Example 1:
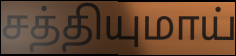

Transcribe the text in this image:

சத்தியுமாய்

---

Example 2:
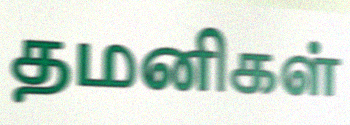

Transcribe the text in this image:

தமனிகள்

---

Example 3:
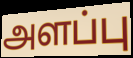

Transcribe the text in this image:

அளப்பு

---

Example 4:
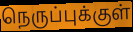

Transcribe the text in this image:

நெருப்புக்குள்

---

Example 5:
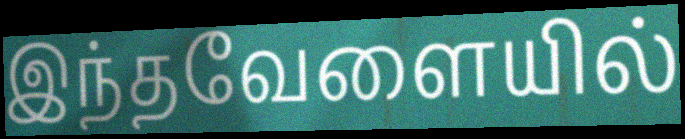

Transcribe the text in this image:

இந்தவேளையில்